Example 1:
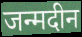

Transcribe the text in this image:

जन्मदीन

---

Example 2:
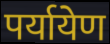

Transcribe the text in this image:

पर्यायेण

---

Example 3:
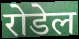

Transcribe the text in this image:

रोडेल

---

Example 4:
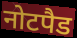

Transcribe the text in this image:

नोटपैड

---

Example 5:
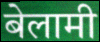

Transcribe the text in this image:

बेलामी